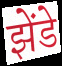
झेंडे